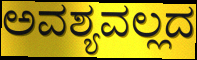
ಅವಶ್ಯವಲ್ಲದ